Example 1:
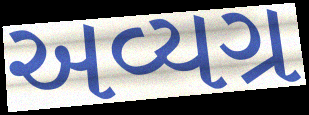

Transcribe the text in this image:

અવ્યગ્ર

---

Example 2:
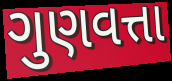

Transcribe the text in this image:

ગુણવત્તા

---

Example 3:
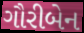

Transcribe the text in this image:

ગૌરીબેન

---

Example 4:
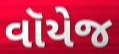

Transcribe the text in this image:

વૉયેજ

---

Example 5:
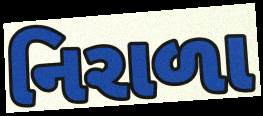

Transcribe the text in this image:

નિરાળા